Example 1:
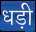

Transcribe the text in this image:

धड़ी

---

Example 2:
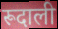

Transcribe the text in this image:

रूदाली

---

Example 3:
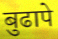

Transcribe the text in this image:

बुढापे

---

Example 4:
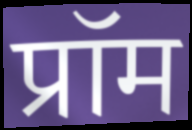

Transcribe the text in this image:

प्रॉम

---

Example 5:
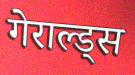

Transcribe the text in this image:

गेराल्ड्स